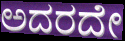
ಅದರದೇ